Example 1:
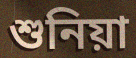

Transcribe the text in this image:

শুনিয়া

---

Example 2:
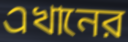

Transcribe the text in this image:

এখানের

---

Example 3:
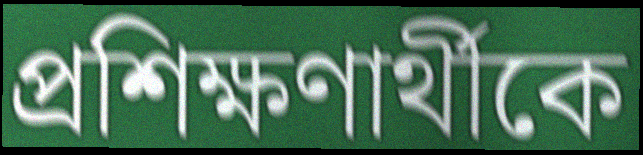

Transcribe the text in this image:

প্রশিক্ষণার্থীকে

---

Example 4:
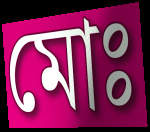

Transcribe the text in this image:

মোঃ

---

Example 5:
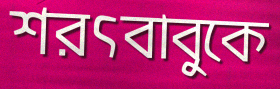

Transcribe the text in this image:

শরৎবাবুকে